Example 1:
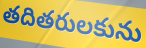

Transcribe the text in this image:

తదితరులకును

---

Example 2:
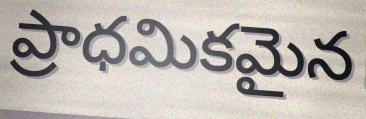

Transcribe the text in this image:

ప్రాధమికమైన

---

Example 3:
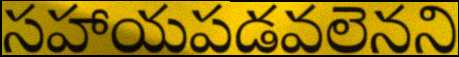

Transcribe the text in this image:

సహాయపడవలెనని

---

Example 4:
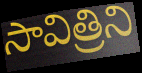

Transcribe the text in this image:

సావిత్రిని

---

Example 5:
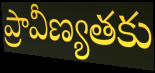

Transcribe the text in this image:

ప్రావీణ్యతకు